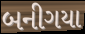
બનીગયા